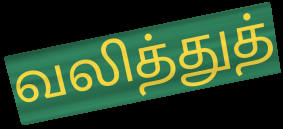
வலித்துத்